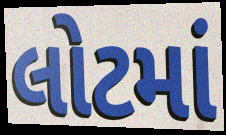
લોટમાં